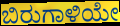
ಬಿರುಗಾಳಿಯೇ